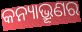
କନ୍ୟାଭ୍ରୂଣର